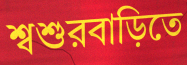
শ্বশুরবাড়িতে